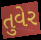
તુવેર